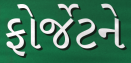
ફોર્જેટને